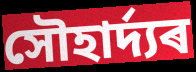
সৌহাৰ্দ্যৰ